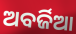
ଅବର୍ଜିଆ